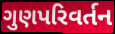
ગુણપરિવર્તન